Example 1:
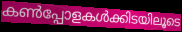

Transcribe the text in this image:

കൺപ്പോളകൾക്കിടയിലൂടെ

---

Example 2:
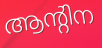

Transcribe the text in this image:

ആന്റിന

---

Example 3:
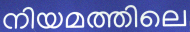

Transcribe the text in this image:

നിയമത്തിലെ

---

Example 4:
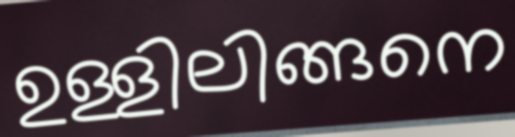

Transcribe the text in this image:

ഉള്ളിലിങ്ങനെ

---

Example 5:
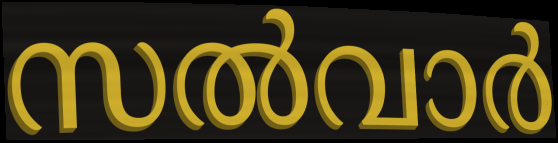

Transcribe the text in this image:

സൽവാർ